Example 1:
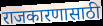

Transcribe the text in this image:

राजकारणासाठी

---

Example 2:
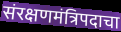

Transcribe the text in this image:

संरक्षणमंत्रिपदाचा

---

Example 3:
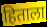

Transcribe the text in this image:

हिताला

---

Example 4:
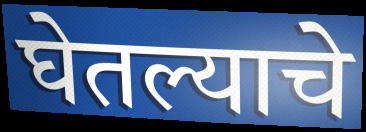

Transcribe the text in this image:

घेतल्याचे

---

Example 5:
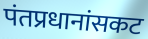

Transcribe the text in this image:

पंतप्रधानांसकट